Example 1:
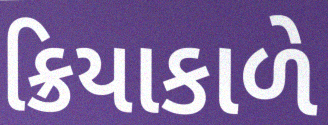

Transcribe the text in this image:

ક્રિયાકાળે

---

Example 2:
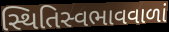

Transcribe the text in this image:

સ્થિતિસ્વભાવવાળાં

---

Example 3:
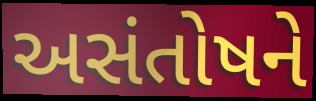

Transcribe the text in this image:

અસંતોષને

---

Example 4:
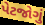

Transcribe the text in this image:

પેટજોગું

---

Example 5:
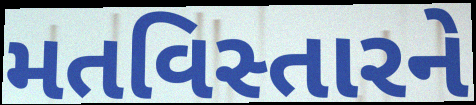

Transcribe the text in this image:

મતવિસ્તારને